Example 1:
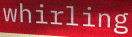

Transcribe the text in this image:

whirling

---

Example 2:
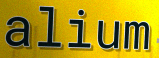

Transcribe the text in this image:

alium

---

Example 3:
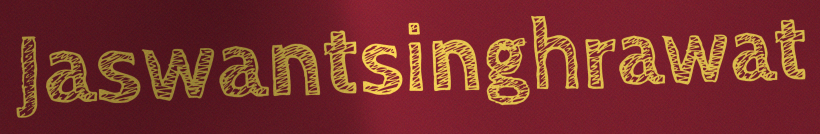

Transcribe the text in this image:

Jaswantsinghrawat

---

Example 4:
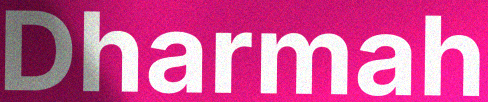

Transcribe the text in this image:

Dharmah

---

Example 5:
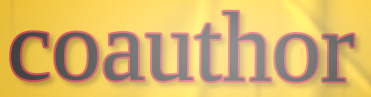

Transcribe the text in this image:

coauthor